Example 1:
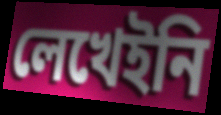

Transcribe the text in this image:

লেখেইনি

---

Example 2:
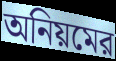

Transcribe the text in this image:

অনিয়মের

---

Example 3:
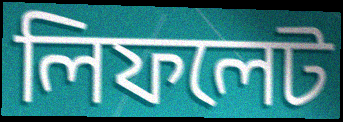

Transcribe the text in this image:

লিফলেট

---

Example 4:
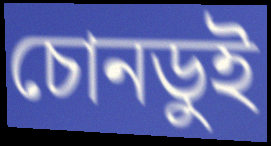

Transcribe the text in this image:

চোনডুই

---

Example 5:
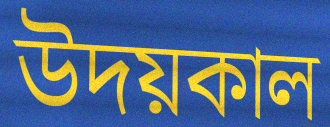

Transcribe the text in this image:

উদয়কাল